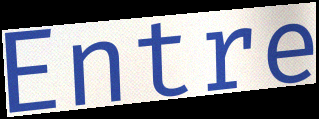
Entre